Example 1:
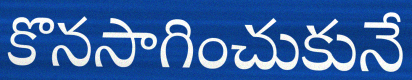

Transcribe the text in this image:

కొనసాగించుకునే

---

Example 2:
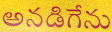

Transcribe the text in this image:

అనడిగేను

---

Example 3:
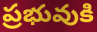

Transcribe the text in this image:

ప్రభువుకి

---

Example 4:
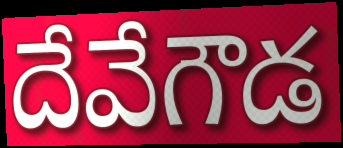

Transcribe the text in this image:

దేవేగౌడ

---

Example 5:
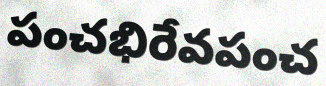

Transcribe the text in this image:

పంచభిరేవపంచ